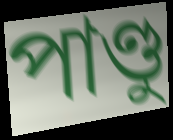
পাণ্ডু